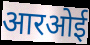
आरओई